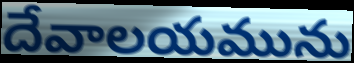
దేవాలయమును